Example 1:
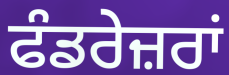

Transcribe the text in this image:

ਫੰਡਰੇਜ਼ਰਾਂ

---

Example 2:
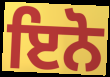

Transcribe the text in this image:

ਇਨੋ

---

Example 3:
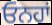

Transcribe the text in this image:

ਓਨਹਾਂ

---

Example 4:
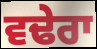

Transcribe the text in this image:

ਵਢੇਰਾ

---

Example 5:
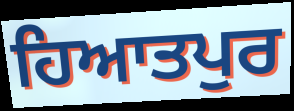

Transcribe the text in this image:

ਹਿਆਤਪੁਰ